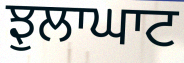
ਝੁਲਾਘਾਟ